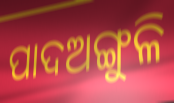
ପାଦଅଙ୍ଗୁଳି